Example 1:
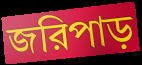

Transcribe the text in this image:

জরিপাড়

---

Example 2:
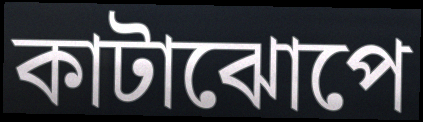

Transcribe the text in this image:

কাটাঝোপে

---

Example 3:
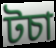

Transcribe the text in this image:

টচা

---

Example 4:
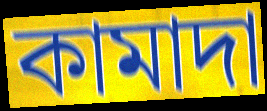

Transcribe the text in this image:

কামাদা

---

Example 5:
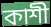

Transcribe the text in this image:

কাশী